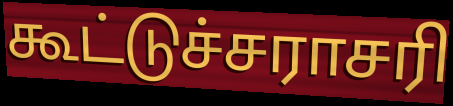
கூட்டுச்சராசரி